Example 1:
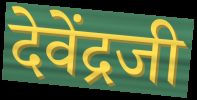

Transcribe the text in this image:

देवेंद्रजी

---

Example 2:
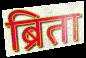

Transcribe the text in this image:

ब्रिता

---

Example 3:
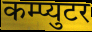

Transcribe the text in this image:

कम्प्युटर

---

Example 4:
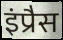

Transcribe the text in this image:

इंप्रैस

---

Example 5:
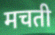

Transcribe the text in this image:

मचती